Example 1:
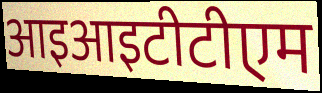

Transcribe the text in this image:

आइआइटीटीएम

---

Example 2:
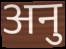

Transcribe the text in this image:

अनु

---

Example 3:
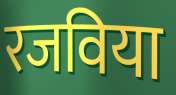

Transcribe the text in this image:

रजविया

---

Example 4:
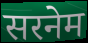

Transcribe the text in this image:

सरनेम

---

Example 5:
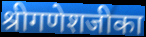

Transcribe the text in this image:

श्रीगणेशजीका